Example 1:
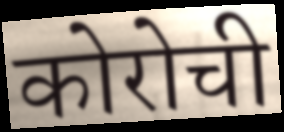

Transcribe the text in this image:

कोरोची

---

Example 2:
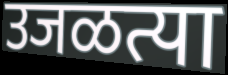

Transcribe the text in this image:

उजळत्या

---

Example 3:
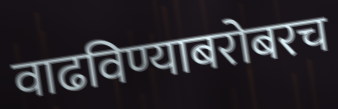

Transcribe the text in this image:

वाढविण्याबरोबरच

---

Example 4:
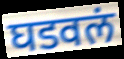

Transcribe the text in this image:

घडवलं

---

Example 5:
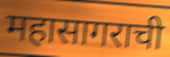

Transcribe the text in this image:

महासागराची